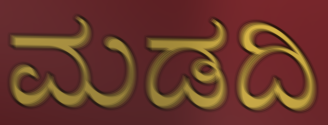
ಮಡದಿ